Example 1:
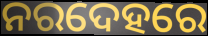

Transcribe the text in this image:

ନରଦେହରେ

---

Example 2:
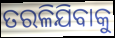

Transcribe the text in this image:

ତରଳିଯିବାକୁ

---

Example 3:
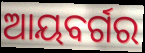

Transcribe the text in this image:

ଆୟବର୍ଗର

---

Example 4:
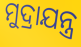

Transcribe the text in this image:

ମୁଦ୍ରାଯନ୍ତ୍ର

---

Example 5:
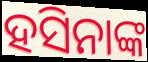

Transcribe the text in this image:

ହସିନାଙ୍କ